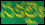
సకలైః